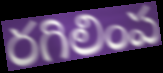
రగిలింప